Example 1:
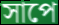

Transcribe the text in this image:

সাপে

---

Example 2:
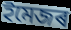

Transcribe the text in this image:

ইমেজৰ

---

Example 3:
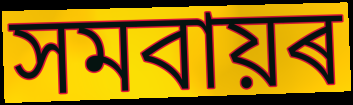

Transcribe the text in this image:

সমবায়ৰ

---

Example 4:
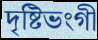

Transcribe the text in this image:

দৃষ্টিভংগী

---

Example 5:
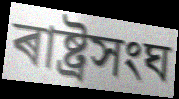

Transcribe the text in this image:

ৰাষ্ট্ৰসংঘ